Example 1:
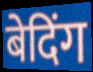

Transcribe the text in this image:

बेदिंग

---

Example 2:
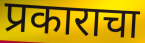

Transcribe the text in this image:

प्रकाराचा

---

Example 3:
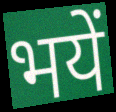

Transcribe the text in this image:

भयें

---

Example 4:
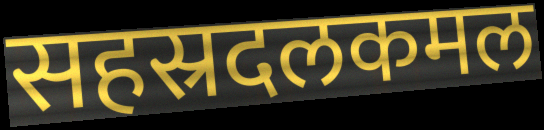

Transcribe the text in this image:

सहस्रदलकमल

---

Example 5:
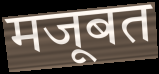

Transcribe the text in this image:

मजूबत